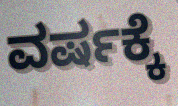
ವರ್ಷಕ್ಕೆ